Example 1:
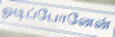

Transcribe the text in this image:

ஓடிப்போனேன்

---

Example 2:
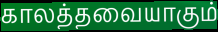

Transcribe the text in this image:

காலத்தவையாகும்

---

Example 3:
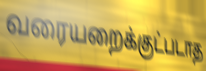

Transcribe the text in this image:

வரையறைக்குட்படாத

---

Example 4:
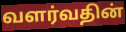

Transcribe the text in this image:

வளர்வதின்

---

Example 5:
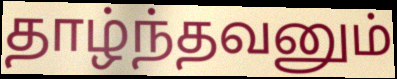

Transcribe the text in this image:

தாழ்ந்தவனும்